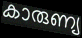
കാരുണ്യ